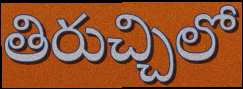
తిరుచ్చిలో